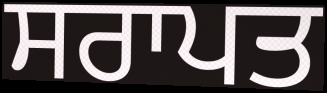
ਸਰਾਪਤ